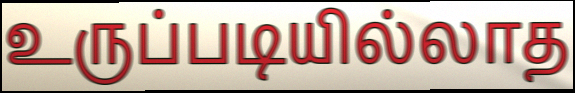
உருப்படியில்லாத